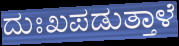
ದುಃಖಪಡುತ್ತಾಳೆ